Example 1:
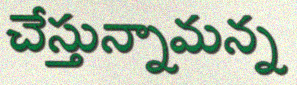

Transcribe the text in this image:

చేస్తున్నామన్న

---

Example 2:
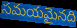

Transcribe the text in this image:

సమయమైనది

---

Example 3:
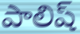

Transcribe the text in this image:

పాలిష్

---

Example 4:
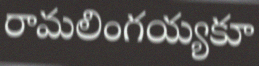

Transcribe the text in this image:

రామలింగయ్యకూ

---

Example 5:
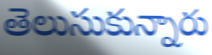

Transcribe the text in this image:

తెలుసుకున్నారు